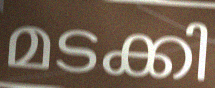
മടക്കി